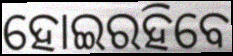
ହୋଇରହିବେ